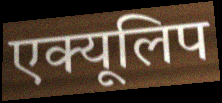
एक्यूलिप